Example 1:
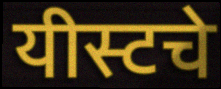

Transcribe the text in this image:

यीस्टचे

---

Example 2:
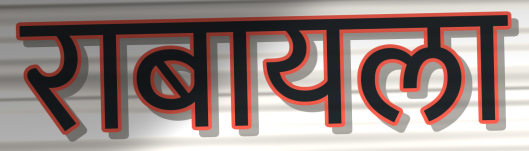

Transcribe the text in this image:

राबायला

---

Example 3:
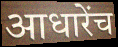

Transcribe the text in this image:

आधारेंच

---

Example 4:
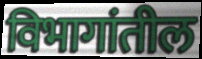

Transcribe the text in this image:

विभागांतील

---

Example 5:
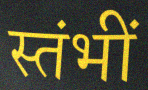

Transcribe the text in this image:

स्तंभीं